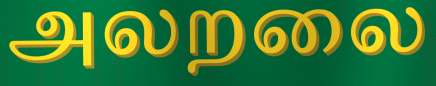
அலறலை